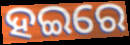
ହଇରେ